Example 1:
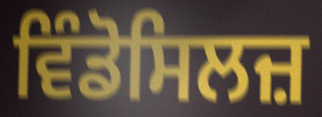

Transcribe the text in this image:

ਵਿੰਡੋਸਿਲਜ਼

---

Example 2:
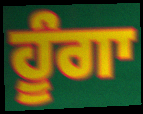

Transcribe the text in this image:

ਹੂੰਗਾ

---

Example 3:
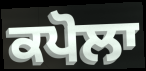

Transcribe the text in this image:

ਕਪੋਲਾ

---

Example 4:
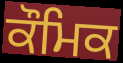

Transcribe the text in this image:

ਕੌਮਿਕ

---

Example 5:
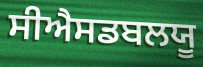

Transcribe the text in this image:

ਸੀਐਸਡਬਲਯੂ